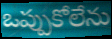
ఒప్పుకోలేను